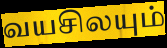
வயசிலயும்